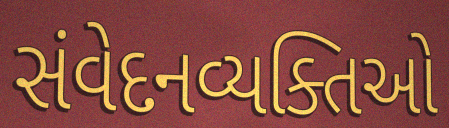
સંવેદનવ્યક્તિઓ